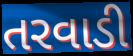
તરવાડી